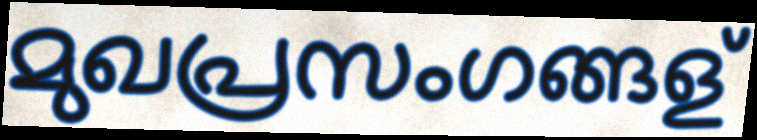
മുഖപ്രസംഗങ്ങള്